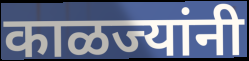
काळज्यांनी